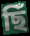
ছিঁ